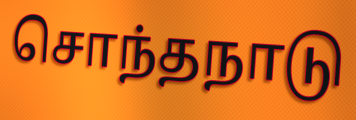
சொந்தநாடு